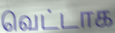
வெட்டாக